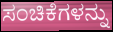
ಸಂಚಿಕೆಗಳನ್ನು